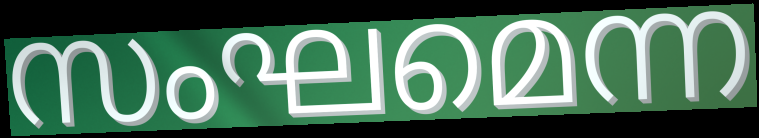
സംഘമെന്ന